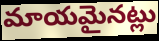
మాయమైనట్లు